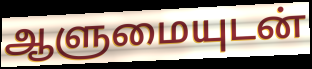
ஆளுமையுடன்